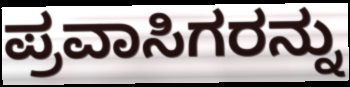
ಪ್ರವಾಸಿಗರನ್ನು